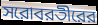
সরোবরতীরের